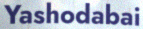
Yashodabai